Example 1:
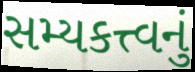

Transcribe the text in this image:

સમ્યકત્ત્વનું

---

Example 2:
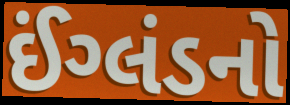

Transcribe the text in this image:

ઈંગ્લંડનો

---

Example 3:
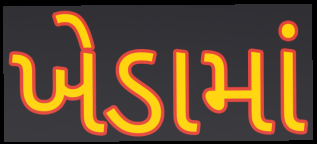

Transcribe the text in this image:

ખેડામાં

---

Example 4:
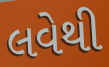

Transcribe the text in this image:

લવેથી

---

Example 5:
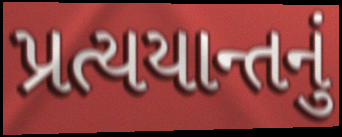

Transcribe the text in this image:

પ્રત્યયાન્તનું